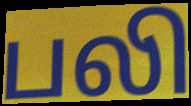
பலி